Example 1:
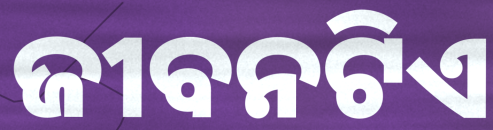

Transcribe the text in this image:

ଜୀବନଟିଏ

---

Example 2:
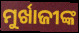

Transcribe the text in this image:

ମୁର୍ଖାଜୀଙ୍କ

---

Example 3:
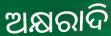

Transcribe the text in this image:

ଅକ୍ଷରାଦି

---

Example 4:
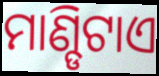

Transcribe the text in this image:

ମାଣ୍ଡିଟାଏ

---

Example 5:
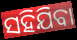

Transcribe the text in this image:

ସହିଯିବା